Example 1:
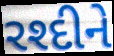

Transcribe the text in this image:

રશ્દીને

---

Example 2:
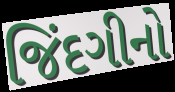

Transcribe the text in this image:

જિંદગીનો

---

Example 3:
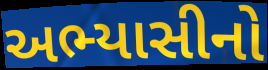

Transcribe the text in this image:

અભ્યાસીનો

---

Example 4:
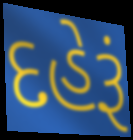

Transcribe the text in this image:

દહેરૂં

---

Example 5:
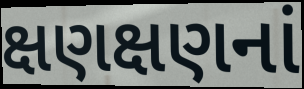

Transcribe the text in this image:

ક્ષણક્ષણનાં